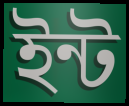
ইন্ট